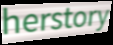
herstory